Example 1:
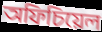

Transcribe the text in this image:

অফিচিয়েল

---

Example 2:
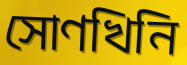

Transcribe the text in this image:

সোণখিনি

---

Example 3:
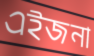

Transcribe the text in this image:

এইজনা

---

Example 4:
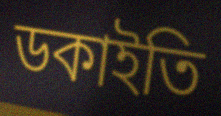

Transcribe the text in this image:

ডকাইতি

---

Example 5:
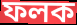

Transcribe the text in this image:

ফলক